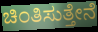
ಚಿಂತಿಸುತ್ತೇನೆ